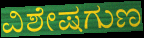
ವಿಶೇಷಗುಣ